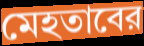
মেহতাবের